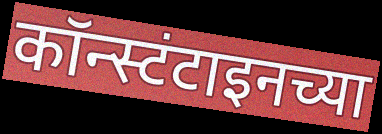
कॉन्स्टंटाइनच्या